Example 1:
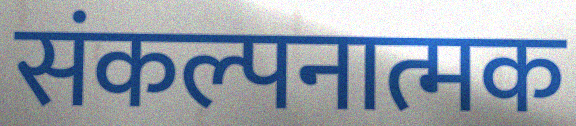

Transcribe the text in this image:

संकल्पनात्मक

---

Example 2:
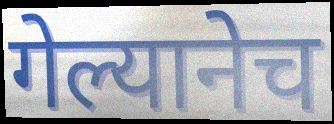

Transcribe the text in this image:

गेल्यानेच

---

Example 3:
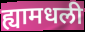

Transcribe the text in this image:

ह्यामधली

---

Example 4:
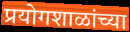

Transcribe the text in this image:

प्रयोगशाळांच्या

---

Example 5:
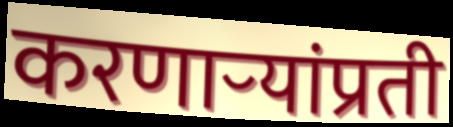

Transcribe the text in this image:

करणाऱ्यांप्रती